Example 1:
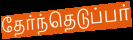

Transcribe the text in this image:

தேர்ந்தெடுப்பர்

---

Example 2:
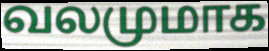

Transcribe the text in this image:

வலமுமாக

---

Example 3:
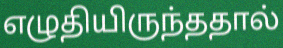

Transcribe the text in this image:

எழுதியிருந்ததால்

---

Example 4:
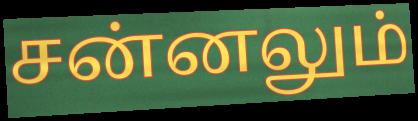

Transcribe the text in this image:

சன்னலும்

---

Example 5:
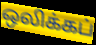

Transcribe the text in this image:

ஒலிக்கப்